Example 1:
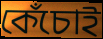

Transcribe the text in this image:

কেঁচোই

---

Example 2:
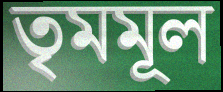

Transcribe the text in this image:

তৃমমূল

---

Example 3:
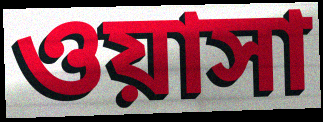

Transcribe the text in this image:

ওয়াসা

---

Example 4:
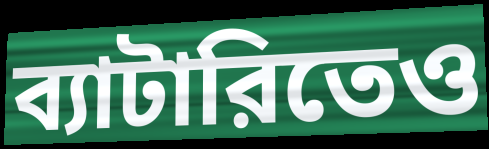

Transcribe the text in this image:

ব্যাটারিতেও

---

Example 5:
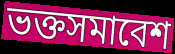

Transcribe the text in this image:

ভক্তসমাবেশ